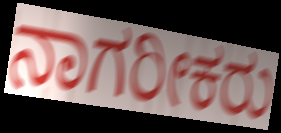
ನಾಗರೀಕರು